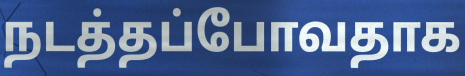
நடத்தப்போவதாக